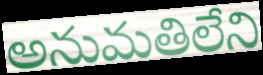
అనుమతిలేని